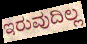
ಇರುವುದಿಲ್ಲ